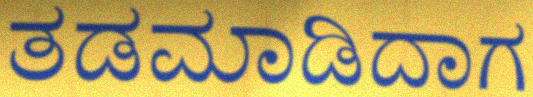
ತಡಮಾಡಿದಾಗ